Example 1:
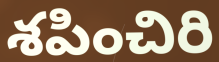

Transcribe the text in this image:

శపించిరి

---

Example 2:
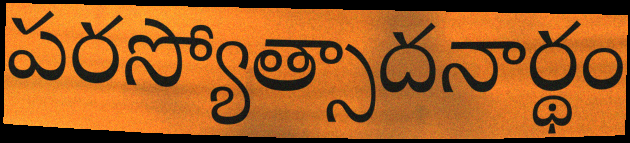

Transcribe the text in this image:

పరస్యోత్సాదనార్థం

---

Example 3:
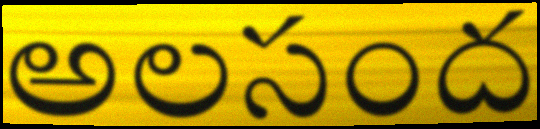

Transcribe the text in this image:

అలసంద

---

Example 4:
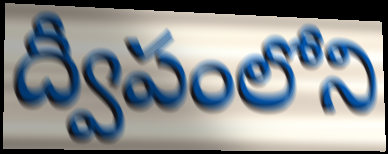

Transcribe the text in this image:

ద్వీపంలోని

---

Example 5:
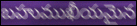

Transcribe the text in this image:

బహుముఖీయమైన